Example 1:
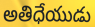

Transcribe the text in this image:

అతిధేయుడు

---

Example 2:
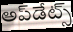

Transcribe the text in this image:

అప్‌డేట్స్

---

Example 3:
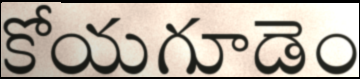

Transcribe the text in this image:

కోయగూడెం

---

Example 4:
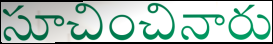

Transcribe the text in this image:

సూచించినారు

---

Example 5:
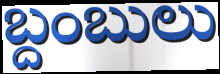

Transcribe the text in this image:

బ్దంబులు